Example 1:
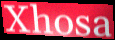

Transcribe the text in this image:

Xhosa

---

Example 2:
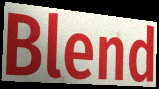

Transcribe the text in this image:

Blend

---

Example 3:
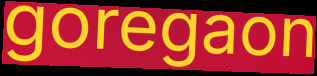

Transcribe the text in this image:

goregaon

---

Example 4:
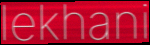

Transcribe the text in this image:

lekhani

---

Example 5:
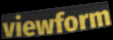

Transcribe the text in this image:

viewform